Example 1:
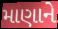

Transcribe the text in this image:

માણાને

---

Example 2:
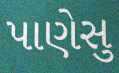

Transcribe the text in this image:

પાણેસુ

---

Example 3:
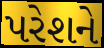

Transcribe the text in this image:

પરેશને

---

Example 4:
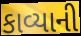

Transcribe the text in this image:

કાવ્યાની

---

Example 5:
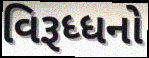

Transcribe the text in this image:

વિરૂધ્ધનો